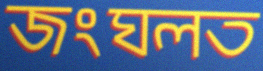
জংঘলত